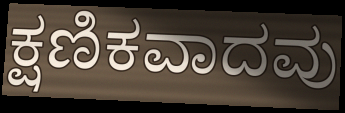
ಕ್ಷಣಿಕವಾದವು